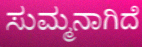
ಸುಮ್ಮನಾಗಿದೆ